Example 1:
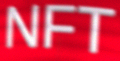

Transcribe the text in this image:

NFT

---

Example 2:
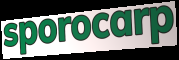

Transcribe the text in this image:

sporocarp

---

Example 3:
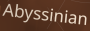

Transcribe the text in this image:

Abyssinian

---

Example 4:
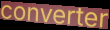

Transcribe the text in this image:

converter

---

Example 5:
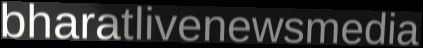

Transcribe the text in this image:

bharatlivenewsmedia